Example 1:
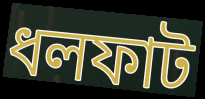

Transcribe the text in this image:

ধলফাট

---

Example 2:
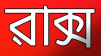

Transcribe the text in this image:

ৱাক্স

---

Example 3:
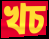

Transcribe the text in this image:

খচ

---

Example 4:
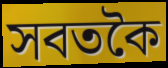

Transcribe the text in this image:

সবতকৈ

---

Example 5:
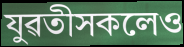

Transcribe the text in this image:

যুৱতীসকলেও